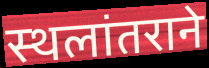
स्थलांतराने